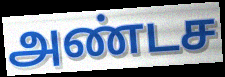
அண்டச